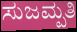
ಸುಜಮ್ಪತಿ